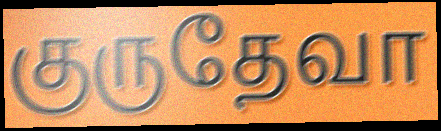
குருதேவா